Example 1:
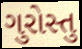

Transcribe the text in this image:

ગુરોસ્તુ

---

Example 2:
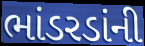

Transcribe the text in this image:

ભાંડરડાંની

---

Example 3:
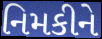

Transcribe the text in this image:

નિમકીને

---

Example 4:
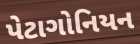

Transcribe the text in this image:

પેટાગોનિયન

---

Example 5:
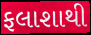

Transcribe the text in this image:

ફલાશાથી